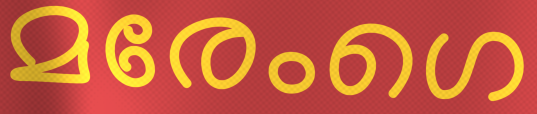
മരേംഗെ